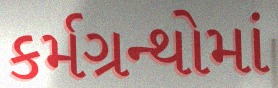
કર્મગ્રન્થોમાં